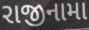
રાજીનામા